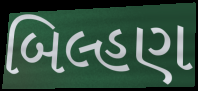
બિલ્હણ